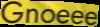
Gnoeee